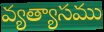
వ్యత్యాసము